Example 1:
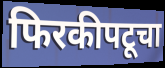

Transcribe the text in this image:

फिरकीपटूचा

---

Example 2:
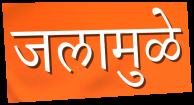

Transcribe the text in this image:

जलामुळे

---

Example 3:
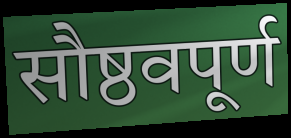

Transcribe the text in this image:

सौष्ठवपूर्ण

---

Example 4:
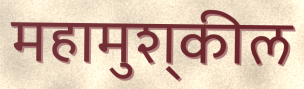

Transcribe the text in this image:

महामुश्कील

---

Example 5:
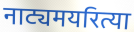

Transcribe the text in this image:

नाट्यमयरित्या